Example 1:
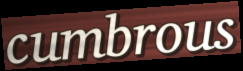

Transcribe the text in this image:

cumbrous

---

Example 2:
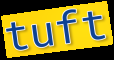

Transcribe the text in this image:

tuft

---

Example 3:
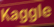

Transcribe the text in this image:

Kaggle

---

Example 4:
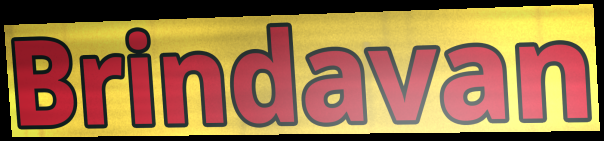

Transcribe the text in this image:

Brindavan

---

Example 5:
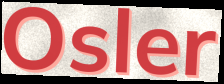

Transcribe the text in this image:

Osler